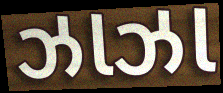
ઝાઝા